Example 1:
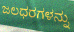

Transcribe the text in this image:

ಜಲಧರಗಳನ್ನು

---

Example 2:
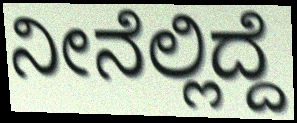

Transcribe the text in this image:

ನೀನೆಲ್ಲಿದ್ದೆ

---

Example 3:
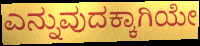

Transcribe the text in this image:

ಎನ್ನುವುದಕ್ಕಾಗಿಯೇ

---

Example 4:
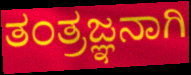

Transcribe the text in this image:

ತಂತ್ರಜ್ಞನಾಗಿ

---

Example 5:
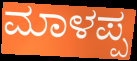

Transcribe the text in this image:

ಮಾಳಪ್ಪ